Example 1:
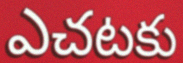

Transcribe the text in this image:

ఎచటకు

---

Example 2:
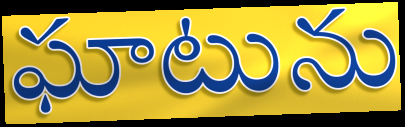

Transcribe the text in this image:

ఘాటును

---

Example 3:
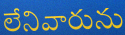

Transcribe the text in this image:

లేనివారును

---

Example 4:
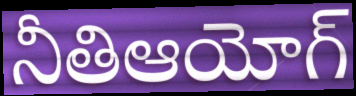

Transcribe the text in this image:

నీతిఆయోగ్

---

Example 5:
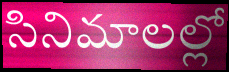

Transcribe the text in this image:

సినిమాలల్లో